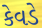
કેવડે